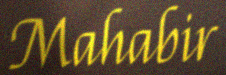
Mahabir